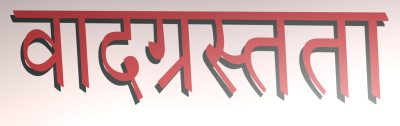
वादग्रस्तता